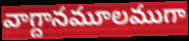
వాగ్దానమూలముగా